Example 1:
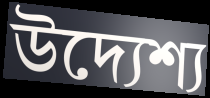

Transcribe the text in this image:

উদ্যেশ্য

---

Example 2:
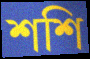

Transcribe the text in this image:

শশি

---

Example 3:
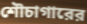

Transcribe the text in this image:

শৌচাগারের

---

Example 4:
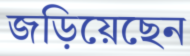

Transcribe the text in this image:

জড়িয়েছেন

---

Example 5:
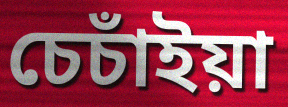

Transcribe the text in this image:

চেচাঁইয়া